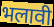
भलावी